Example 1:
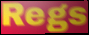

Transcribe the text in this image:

Regs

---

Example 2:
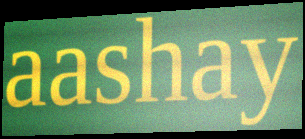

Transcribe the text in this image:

aashay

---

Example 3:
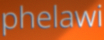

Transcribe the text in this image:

phelawi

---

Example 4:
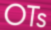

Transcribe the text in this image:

OTs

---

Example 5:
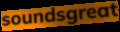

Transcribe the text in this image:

soundsgreat